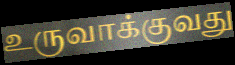
உருவாக்குவது